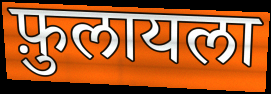
फ़ुलायला